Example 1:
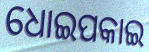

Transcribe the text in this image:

ଧୋଇପକାଇ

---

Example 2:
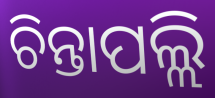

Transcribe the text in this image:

ଚିନ୍ତାପଲ୍ଲି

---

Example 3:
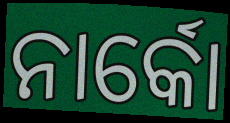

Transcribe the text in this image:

ନାର୍କୋ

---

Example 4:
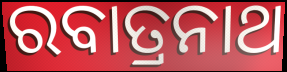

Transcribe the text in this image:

ରବାତ୍ରନାଥ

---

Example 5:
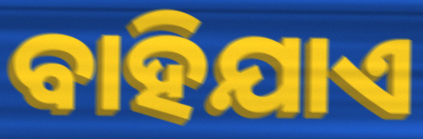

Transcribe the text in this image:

ବାହିଯାଏ